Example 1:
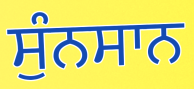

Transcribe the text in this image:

ਸੁੰਨਸਾਨ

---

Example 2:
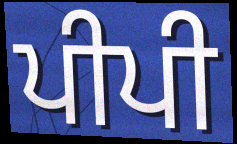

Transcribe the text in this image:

ਪੀਪੀ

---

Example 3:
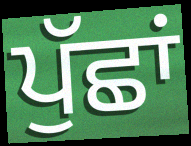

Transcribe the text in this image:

ਪੁੱਛਾਂ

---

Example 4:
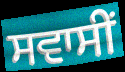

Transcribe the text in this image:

ਸਵਾਸੀਂ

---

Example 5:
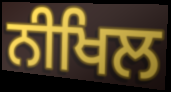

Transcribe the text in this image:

ਨੀਖਿਲ